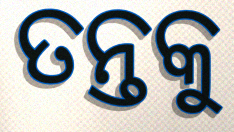
ତନ୍ତକୁ